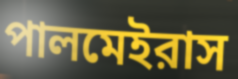
পালমেইরাস